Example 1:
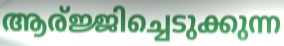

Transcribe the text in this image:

ആര്ജ്ജിച്ചെടുക്കുന്ന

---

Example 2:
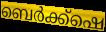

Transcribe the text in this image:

ബെർക്ക്ഷെ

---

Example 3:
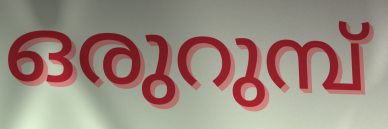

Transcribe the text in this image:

ഒരുറുമ്പ്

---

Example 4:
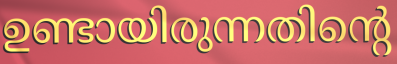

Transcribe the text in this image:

ഉണ്ടായിരുന്നതിന്റെ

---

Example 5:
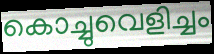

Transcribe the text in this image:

കൊച്ചുവെളിച്ചം